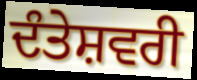
ਦੰਤੇਸ਼ਵਰੀ